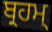
ਬ੍ਰਹਮ੍